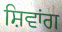
ਸ਼ਿਵਾਂਗ